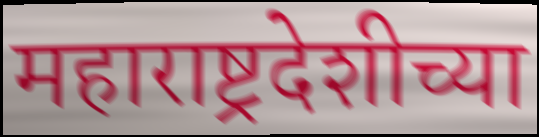
महाराष्ट्रदेशीच्या